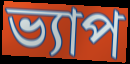
ভ্যাপ